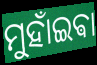
ମୁହାଁଇଵା